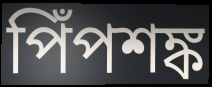
পিঁপশঙ্ক